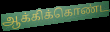
ஆக்கிக்கொண்ட